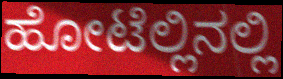
ಹೋಟೆಲ್ಲಿನಲ್ಲಿ